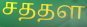
சததள